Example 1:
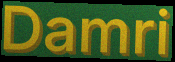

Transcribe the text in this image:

Damri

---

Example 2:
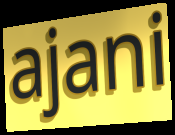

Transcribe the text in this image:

ajani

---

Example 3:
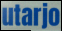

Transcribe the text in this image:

utarjo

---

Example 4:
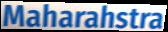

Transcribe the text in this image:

Maharahstra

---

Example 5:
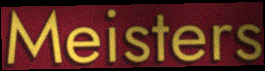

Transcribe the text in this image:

Meisters